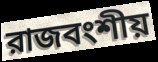
রাজবংশীয়